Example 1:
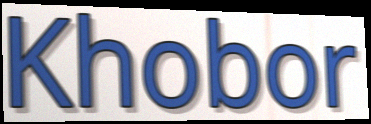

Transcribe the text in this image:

Khobor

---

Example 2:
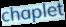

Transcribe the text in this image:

chaplet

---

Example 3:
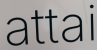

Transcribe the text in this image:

attai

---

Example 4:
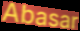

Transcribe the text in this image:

Abasar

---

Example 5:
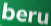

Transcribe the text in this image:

beru